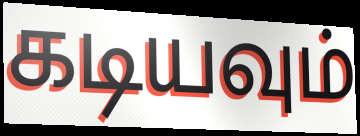
கடியவும்